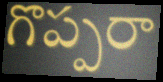
గొప్పరా